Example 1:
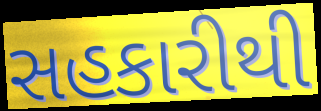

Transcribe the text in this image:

સહકારીથી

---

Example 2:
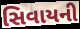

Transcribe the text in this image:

સિવાયની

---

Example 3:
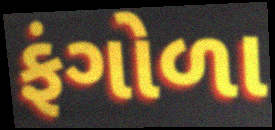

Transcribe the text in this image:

ફંગોળા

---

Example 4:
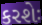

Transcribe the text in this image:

કરશેઃ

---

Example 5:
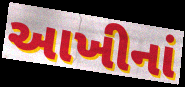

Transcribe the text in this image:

આખીનાં